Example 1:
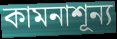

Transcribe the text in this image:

কামনাশূন্য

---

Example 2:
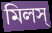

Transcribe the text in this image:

মিলস্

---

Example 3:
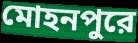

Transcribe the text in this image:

মোহনপুরে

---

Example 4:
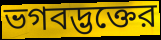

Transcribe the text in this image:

ভগবদ্ভক্তের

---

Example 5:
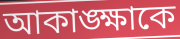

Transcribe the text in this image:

আকাঙ্ক্ষাকে